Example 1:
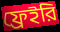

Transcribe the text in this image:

ফ্রেইরি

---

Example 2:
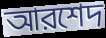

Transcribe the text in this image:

আরশেদ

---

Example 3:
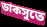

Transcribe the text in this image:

ডাকসুতে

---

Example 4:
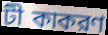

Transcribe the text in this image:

টীকাকরণ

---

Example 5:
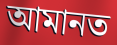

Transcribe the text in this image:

আমানত